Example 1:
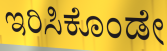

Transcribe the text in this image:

ಇರಿಸಿಕೊಂಡೇ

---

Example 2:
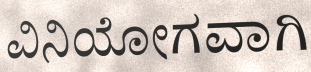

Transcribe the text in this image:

ವಿನಿಯೋಗವಾಗಿ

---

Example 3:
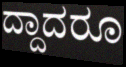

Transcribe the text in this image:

ದ್ದಾದರೂ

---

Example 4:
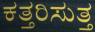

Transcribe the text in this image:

ಕತ್ತರಿಸುತ್ತ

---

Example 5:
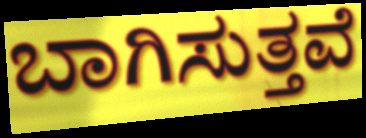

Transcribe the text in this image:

ಬಾಗಿಸುತ್ತವೆ